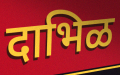
दाभिळ